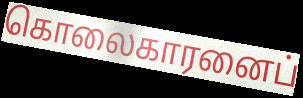
கொலைகாரனைப்